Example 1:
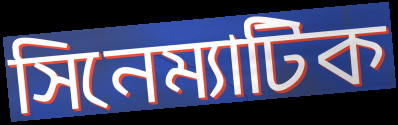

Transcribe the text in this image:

সিনেম্যাটিক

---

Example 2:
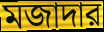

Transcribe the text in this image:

মজাদার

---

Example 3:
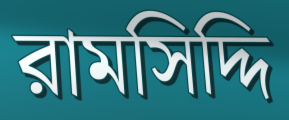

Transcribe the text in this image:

রামসিদ্দি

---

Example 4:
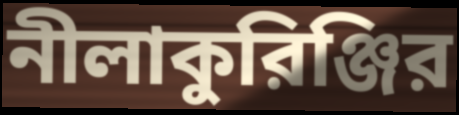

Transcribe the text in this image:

নীলাকুরিঞ্জির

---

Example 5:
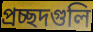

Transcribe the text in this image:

প্রচ্ছদগুলি